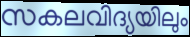
സകലവിദ്യയിലും